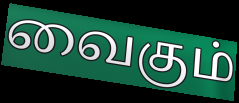
வைகும்